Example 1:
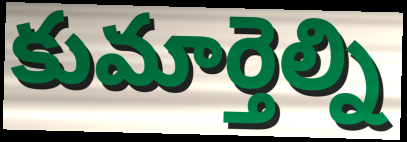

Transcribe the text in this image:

కుమార్తెల్ని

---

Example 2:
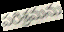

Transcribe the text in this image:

పరిశ్రమను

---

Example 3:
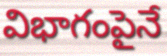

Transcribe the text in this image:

విభాగంపైనే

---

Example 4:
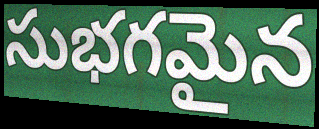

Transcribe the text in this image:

సుభగమైన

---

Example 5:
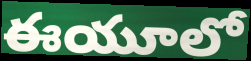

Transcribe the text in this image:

ఈయూలో